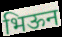
भिऊन